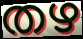
തഴ